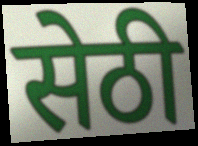
सेठी